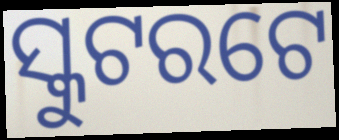
ସ୍କୁଟରଟେ